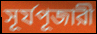
সূর্যপূজারী